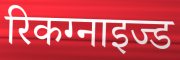
रिकग्नाइज्ड